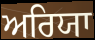
ਅਰਿਯਾ